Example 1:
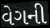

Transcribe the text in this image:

વેગની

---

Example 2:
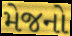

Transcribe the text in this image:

મેજનો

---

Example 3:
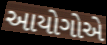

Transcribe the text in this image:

આયોગોએ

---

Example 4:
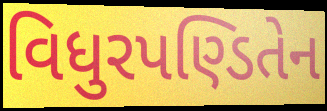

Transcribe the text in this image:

વિધુરપણ્ડિતેન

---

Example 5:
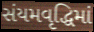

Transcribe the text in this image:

સંયમવૃદ્ધિમાં